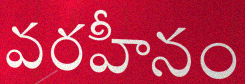
వరహీనం